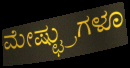
ಮೇಷ್ಟ್ರುಗಳೂ